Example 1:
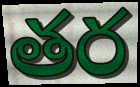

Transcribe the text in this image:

తర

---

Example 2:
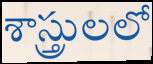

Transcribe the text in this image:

శాస్త్రులలో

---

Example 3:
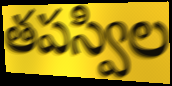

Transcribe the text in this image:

తపస్విల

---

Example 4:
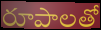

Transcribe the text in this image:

రూపాలతో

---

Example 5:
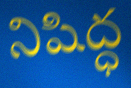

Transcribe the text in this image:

నిషిద్ధ